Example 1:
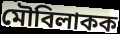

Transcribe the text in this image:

মৌবিলাকক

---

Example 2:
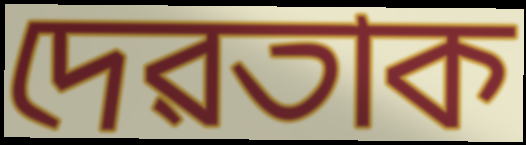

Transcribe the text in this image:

দেৱতাক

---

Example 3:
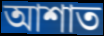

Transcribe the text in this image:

আশাত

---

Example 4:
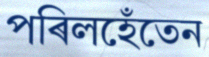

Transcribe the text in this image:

পৰিলহেঁতেন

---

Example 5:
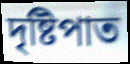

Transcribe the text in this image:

দৃষ্টিপাত